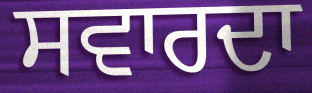
ਸਵਾਰਦਾ